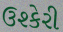
ઉશ્કેરી